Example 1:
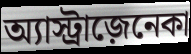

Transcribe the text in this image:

অ্যাস্ট্রাজ়েনেকা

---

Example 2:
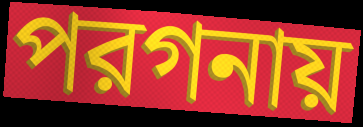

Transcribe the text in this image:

পরগনায়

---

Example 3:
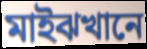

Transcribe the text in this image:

মাইঝখানে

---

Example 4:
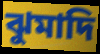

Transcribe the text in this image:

ঝুমাদি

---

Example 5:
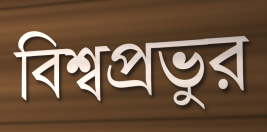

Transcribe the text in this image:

বিশ্বপ্রভুর